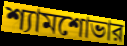
শ্যামশোভার